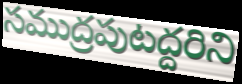
సముద్రపుటద్దరిని